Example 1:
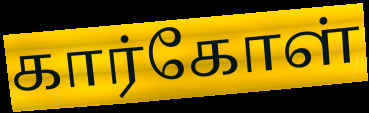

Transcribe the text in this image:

கார்கோள்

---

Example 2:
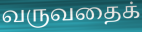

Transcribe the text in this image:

வருவதைக்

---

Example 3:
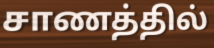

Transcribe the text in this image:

சாணத்தில்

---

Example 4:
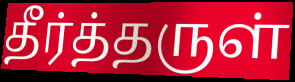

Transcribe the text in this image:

தீர்த்தருள்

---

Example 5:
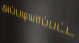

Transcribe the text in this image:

அப்படியாப்பட்ட